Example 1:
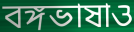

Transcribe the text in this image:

বঙ্গভাষাও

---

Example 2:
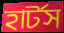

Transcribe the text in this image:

হার্টস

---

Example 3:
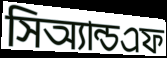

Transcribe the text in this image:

সিঅ্যান্ডএফ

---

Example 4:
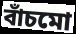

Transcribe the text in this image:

বাঁচমো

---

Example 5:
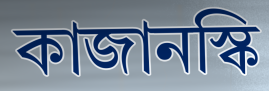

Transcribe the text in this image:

কাজানস্কি